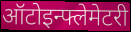
ऑटोइन्फ्लेमेटरी